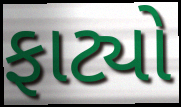
ફાટ્યો